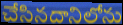
చేసినదానిలోను